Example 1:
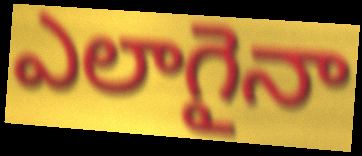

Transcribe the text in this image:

ఎలాగైనా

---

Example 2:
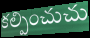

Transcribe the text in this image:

కల్పించుచు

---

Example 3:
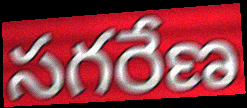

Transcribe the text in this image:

సగరేణ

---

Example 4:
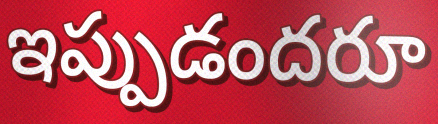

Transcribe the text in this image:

ఇప్పుడందరూ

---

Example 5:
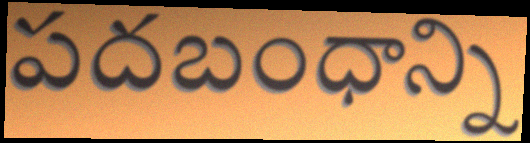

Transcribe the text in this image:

పదబంధాన్ని